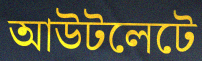
আউটলেটে